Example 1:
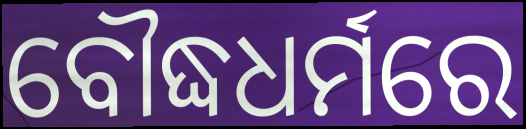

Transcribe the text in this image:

ବୌଦ୍ଧଧର୍ମରେ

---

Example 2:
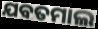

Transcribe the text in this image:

ଯବତମାଲ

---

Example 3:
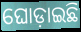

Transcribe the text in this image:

ଘୋଡ଼ାଇଛି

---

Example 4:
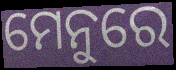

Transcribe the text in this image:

ମେନୁରେ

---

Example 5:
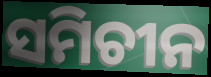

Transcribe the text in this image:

ସମିଚୀନ